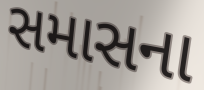
સમાસના